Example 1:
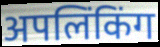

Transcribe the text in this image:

अपलिंकिंग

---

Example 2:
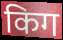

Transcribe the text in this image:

किग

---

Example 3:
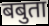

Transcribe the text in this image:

बबुता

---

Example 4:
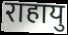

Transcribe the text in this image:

राहायु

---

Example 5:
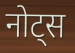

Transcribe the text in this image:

नोट्स